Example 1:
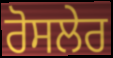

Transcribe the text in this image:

ਰੋਸਲੇਰ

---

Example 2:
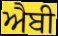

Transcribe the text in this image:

ਐਬੀ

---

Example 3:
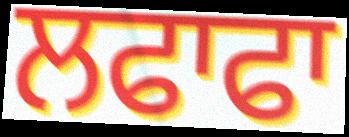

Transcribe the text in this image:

ਲਫਾਫਾ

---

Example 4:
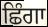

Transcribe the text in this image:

ਛਿੰਗਾ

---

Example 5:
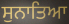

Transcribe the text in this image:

ਸੁਨਾਤਿਆ